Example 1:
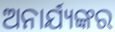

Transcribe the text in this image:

ଅନାର୍ଯ୍ୟଙ୍କର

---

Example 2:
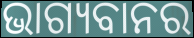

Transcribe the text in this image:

ଭାଗ୍ୟବାନର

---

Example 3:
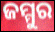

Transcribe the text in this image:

ଜମ୍ମୁର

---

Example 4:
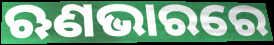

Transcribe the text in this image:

ଋଣଭାରରେ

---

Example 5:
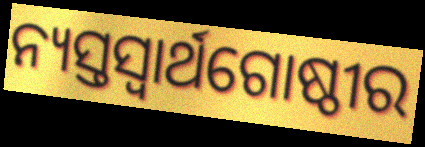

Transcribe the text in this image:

ନ୍ୟସ୍ତସ୍ୱାର୍ଥଗୋଷ୍ଠୀର